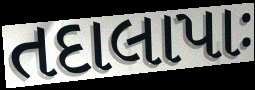
તદાલાપાઃ